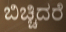
ಬಿಚ್ಚಿದರೆ